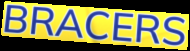
BRACERS